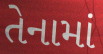
તેનામાં